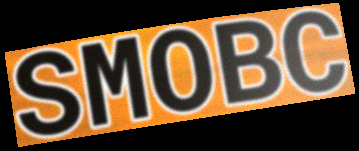
SMOBC